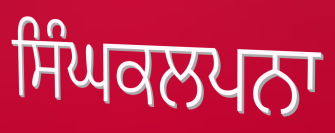
ਸਿੰਘਕਲਪਨਾ